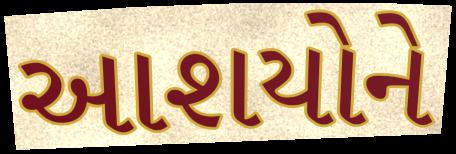
આશયોને